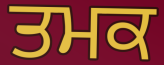
ਤਮਕ